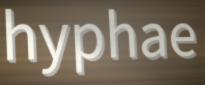
hyphae